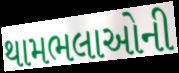
થામભલાઓની